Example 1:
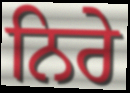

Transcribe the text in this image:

ਨਿਰੇ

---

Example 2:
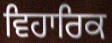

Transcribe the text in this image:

ਵਿਹਾਰਿਕ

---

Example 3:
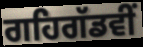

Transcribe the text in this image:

ਗਹਿਗੱਡਵੀਂ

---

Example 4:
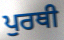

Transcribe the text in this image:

ਪੁਰਥੀ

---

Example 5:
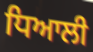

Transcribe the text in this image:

ਧਿਆਲੀ